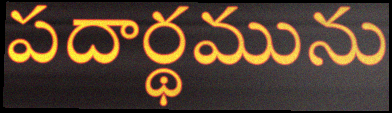
పదార్థమును